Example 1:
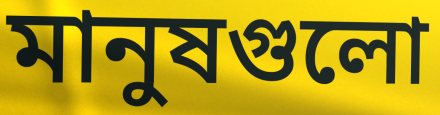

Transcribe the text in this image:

মানুষগুলো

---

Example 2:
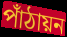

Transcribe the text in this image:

পাঁঠায়ন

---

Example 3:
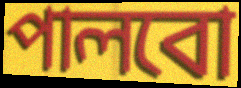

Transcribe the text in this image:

পালবো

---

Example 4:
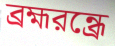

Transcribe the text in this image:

ব্রহ্মরন্ধ্রে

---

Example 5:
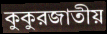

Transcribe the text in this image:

কুকুরজাতীয়